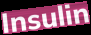
Insulin